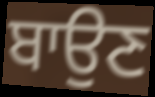
ਬਾਉਣ